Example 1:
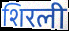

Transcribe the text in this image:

शिरली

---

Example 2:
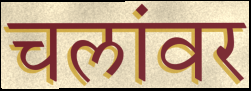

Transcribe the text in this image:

चलांवर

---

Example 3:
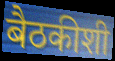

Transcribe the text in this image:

बैठकीशी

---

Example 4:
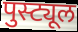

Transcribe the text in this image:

पुस्ट्यूल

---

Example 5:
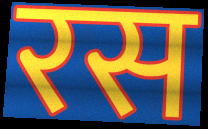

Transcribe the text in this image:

रस